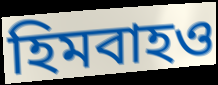
হিমবাহও